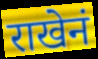
राखेनं